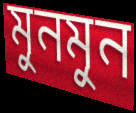
মুনমুন